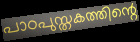
പാഠപുസ്തകത്തിന്റെ